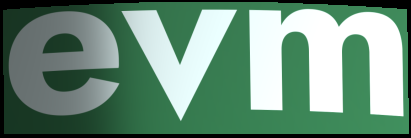
evm